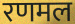
रणमल